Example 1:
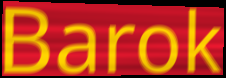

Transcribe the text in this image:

Barok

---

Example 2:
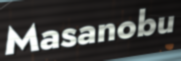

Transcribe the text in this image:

Masanobu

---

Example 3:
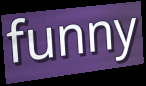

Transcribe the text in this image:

funny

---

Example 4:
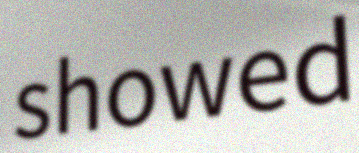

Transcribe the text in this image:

showed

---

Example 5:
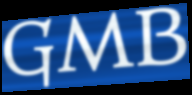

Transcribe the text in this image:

GMB